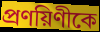
প্রণয়িণীকে